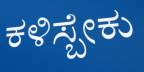
ಕಳಿಸ್ಬೇಕು